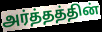
அர்த்தத்தின்